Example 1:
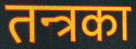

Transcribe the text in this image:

तन्त्रका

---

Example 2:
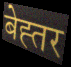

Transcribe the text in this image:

बेह्तर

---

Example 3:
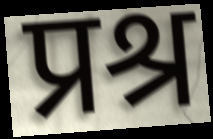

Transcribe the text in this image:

प्रश्र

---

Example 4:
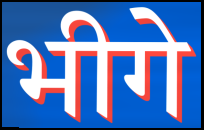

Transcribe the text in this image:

भीगे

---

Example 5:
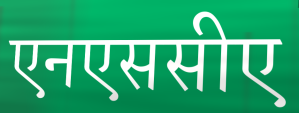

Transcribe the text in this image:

एनएससीए